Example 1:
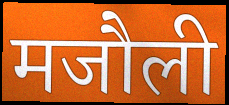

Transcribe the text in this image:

मजौली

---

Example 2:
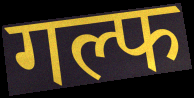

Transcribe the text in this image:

गल्फ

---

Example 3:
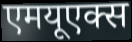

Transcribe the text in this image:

एमयूएक्स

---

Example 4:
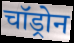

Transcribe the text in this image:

चॉड्रोन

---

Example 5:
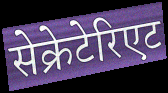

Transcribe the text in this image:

सेक्रेटेरिएट